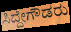
ಸಿದ್ದೇಗೌಡರು